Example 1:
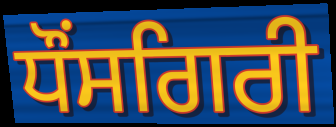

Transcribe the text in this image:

ਧੌਂਸਗਿਰੀ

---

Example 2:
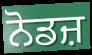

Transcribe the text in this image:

ਨੋਡਜ਼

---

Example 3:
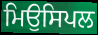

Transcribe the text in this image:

ਮਿਉਸਿਪਲ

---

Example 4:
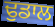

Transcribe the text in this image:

ਢੁਡਾਲ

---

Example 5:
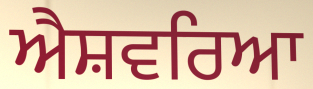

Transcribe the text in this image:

ਐਸ਼ਵਰਿਆ